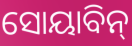
ସୋୟାବିନ୍